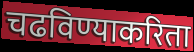
चढविण्याकरिता